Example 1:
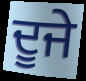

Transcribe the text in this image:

ਦੂਜੇ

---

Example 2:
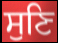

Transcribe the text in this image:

ਸੁਣਿ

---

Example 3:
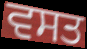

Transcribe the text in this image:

ਵਸਤ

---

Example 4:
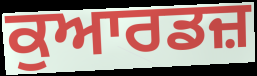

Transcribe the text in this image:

ਕੁਆਰਡਜ਼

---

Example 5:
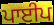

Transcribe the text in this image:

ਪਾਈਪ